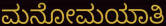
ಮನೋಮಯಾತಿ